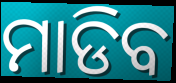
ମାଡିବ